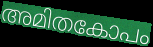
അമിതകോപം